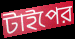
টাইপের